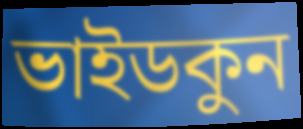
ভাইডকুন